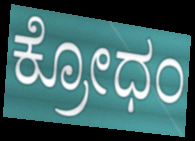
ಕ್ರೋಧಂ